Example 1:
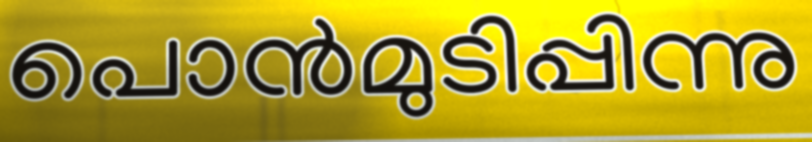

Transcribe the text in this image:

പൊൻമുടിപ്പിന്നു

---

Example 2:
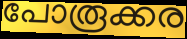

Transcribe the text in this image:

പോരൂക്കര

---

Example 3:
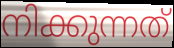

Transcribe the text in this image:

നിക്കുന്നത്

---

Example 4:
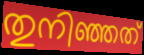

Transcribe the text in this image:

തുനിഞ്ഞത്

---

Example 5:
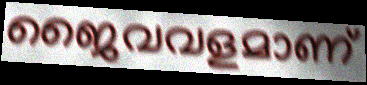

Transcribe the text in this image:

ജൈവവളമാണ്